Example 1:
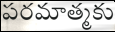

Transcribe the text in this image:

పరమాత్మకు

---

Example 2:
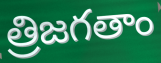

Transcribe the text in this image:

త్రిజగతాం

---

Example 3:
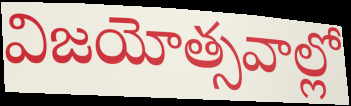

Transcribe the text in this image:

విజయోత్సవాల్లో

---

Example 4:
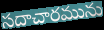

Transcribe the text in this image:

సదాచారమును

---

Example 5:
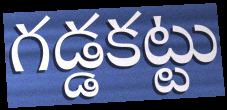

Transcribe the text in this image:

గడ్డకట్టు